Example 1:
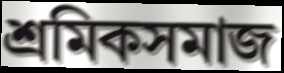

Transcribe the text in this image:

শ্রমিকসমাজ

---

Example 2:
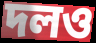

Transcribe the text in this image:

দলও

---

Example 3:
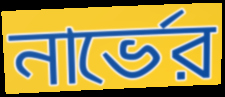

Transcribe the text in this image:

নার্ভের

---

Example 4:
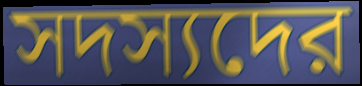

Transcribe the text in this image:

সদস্যদের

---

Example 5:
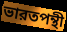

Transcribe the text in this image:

ভারতপন্থী